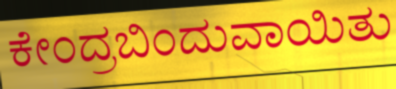
ಕೇಂದ್ರಬಿಂದುವಾಯಿತು